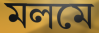
মলমে